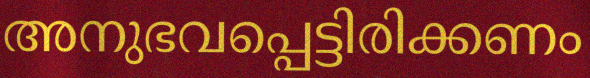
അനുഭവപ്പെട്ടിരിക്കണം